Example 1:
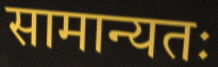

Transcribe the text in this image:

सामान्यतः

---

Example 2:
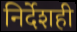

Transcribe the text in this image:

निर्देशही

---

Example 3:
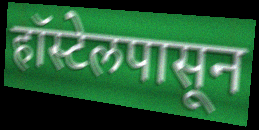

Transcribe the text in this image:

हॉस्टेलपासून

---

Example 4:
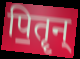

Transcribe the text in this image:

पि॒तॄन्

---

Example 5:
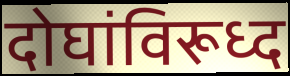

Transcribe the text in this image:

दोघांविरूध्द